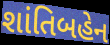
શાંતિબહેન